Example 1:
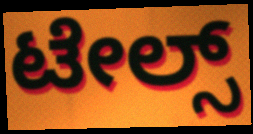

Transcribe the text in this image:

ಟೇಲ್ಸ್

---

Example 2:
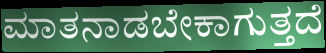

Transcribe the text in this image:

ಮಾತನಾಡಬೇಕಾಗುತ್ತದೆ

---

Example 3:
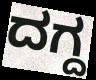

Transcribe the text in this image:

ದಗ್ದ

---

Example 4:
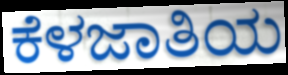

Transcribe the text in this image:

ಕೆಳಜಾತಿಯ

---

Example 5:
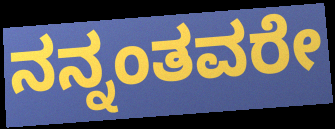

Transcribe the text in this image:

ನನ್ನಂತವರೇ